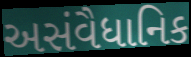
અસંવૈધાનિક